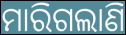
ମାରିଗଲାଣି